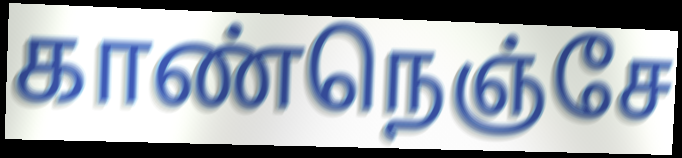
காண்நெஞ்சே